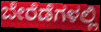
ಬೇರೆಡೆಗಳಲ್ಲಿ